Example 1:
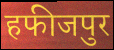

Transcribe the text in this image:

हफीजपुर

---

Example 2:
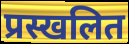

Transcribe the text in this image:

प्रस्खलित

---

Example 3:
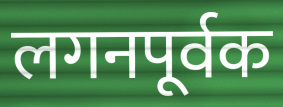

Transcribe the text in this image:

लगनपूर्वक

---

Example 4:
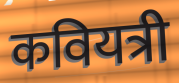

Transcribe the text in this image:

कवियत्री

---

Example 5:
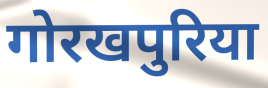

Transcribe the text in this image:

गोरखपुरिया